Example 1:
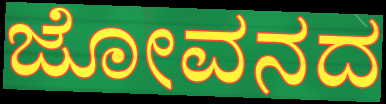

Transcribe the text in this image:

ಜೋವನದ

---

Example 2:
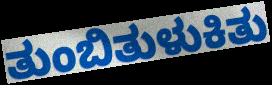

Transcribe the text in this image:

ತುಂಬಿತುಳುಕಿತು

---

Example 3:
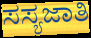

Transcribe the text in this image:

ಸಸ್ಯಜಾತಿ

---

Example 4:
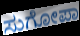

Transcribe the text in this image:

ಸುಗೋಪಾ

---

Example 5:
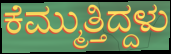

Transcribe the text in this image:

ಕೆಮ್ಮುತ್ತಿದ್ದಳು